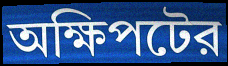
অক্ষিপটের